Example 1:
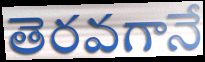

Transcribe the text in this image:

తెరవగానే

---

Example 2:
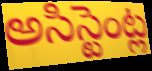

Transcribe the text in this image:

అసిస్టెంట్ల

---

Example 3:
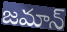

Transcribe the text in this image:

జమాన్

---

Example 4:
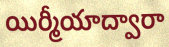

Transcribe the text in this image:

యిర్మీయాద్వారా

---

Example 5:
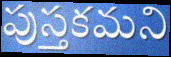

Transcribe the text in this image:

పుస్తకమని